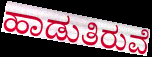
ಹಾಡುತಿರುವೆ